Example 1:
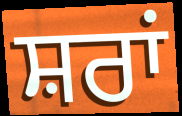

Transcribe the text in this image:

ਸ਼ਰਾਂ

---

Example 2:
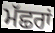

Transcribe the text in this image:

ਮੱਛਰਾਂ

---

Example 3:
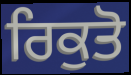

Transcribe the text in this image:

ਰਿਕੁਤੋ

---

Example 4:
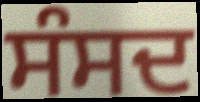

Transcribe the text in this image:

ਸੰਸਦ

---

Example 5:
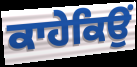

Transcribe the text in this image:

ਕਾਹੇਕਿਉਂ